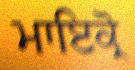
ਮਾਇਕ੍ਰੋ